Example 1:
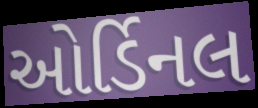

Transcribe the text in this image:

ઓર્ડિનલ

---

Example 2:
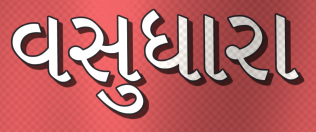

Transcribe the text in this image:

વસુધારા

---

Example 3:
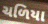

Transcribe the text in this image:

ચળિયા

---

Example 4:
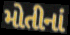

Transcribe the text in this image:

મોતીનાં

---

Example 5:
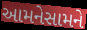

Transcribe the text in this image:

આમનેસામને